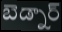
బెడ్నార్